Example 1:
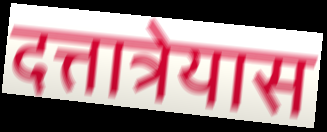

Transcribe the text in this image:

दत्तात्रेयास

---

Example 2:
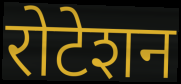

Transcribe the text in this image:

रोटेशन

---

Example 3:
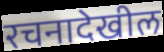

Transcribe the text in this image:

रचनादेखील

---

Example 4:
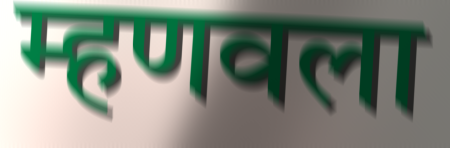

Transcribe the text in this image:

म्हणवला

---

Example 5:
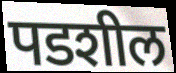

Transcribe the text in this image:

पडशील